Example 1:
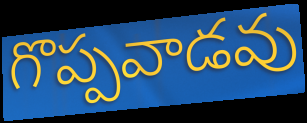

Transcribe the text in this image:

గొప్పవాడవు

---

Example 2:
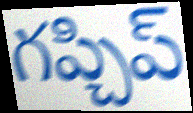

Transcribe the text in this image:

గప్చిప్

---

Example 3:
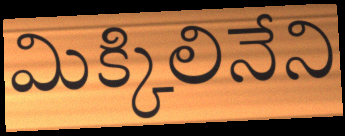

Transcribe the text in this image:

మిక్కిలినేని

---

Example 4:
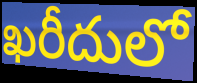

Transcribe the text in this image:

ఖరీదులో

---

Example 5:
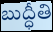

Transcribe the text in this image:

బుద్ధీతి